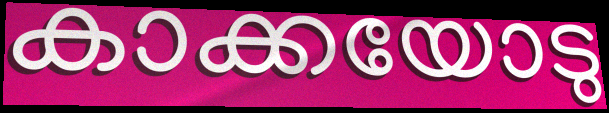
കാക്കയോടു